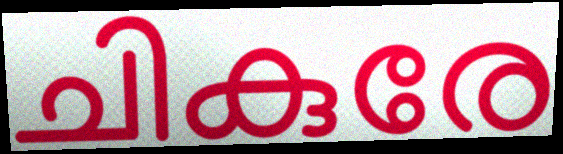
ചികുരേ